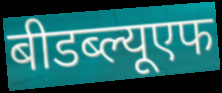
बीडब्ल्यूएफ